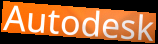
Autodesk